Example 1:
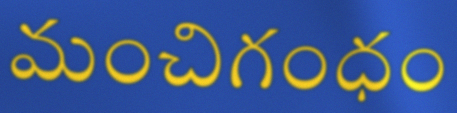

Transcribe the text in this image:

మంచిగంధం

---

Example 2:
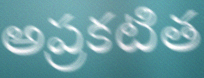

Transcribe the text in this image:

అప్రకటిత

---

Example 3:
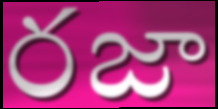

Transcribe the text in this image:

రజా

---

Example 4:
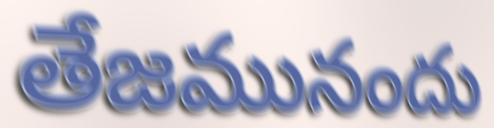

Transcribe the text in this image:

తేజమునందు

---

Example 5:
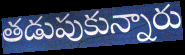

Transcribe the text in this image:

తడుపుకున్నారు